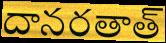
దానరతాత్